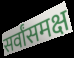
सर्वांसमक्ष